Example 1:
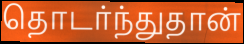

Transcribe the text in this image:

தொடர்ந்துதான்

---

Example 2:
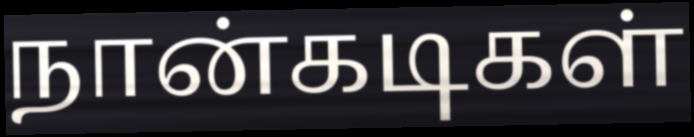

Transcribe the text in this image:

நான்கடிகள்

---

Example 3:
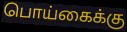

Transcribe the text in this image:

பொய்கைக்கு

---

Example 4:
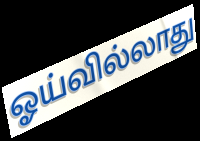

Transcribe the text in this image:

ஓய்வில்லாது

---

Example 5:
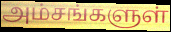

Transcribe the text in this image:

அம்சங்களுள்